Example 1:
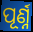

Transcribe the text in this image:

ପୂର୍ଣ୍ନ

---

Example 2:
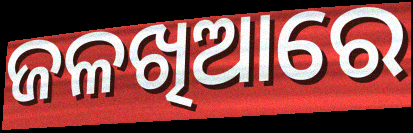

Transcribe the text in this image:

ଜଳଖିଆରେ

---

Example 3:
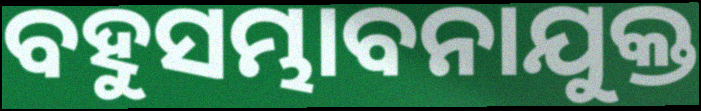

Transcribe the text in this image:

ବହୁସମ୍ଭାବନାଯୁକ୍ତ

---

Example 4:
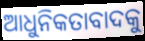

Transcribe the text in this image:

ଆଧୁନିକତାବାଦକୁ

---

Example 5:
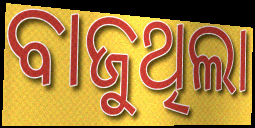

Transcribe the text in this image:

ବାଜୁଥିଲା